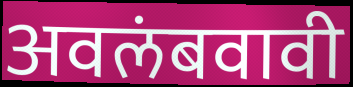
अवलंबवावी